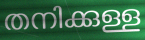
തനിക്കുള്ള